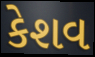
કેશવ